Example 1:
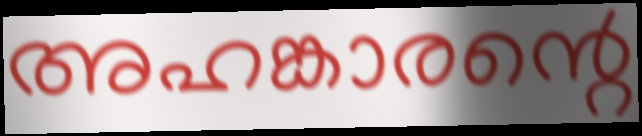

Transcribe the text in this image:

അഹങ്കാരന്റെ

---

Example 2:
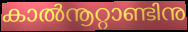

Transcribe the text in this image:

കാൽനൂറ്റാണ്ടിനു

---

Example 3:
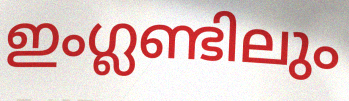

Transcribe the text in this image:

ഇംഗ്ലണ്ടിലും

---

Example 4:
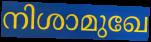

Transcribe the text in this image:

നിശാമുഖേ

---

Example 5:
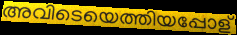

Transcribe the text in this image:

അവിടെയെത്തിയപ്പോള്